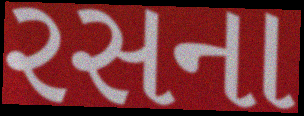
રસના